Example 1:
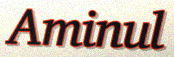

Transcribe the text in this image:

Aminul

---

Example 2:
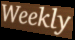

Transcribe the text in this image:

Weekly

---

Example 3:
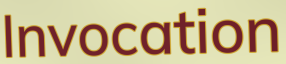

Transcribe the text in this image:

Invocation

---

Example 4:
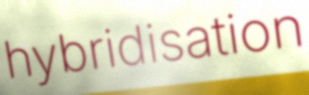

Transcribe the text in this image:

hybridisation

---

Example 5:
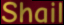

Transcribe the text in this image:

Shail